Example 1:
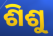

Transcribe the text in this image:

ଶିଶୁ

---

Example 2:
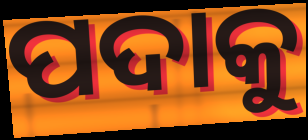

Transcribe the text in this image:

ପଦାକୁ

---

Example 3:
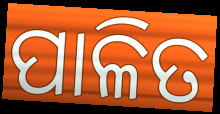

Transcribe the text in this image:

ପାଳିତ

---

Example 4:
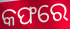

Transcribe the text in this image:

କଫରେ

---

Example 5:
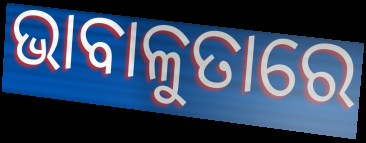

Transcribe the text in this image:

ଭାବାଳୁତାରେ